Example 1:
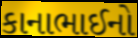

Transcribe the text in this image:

કાનાભાઈનો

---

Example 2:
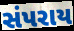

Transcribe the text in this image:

સંપરાય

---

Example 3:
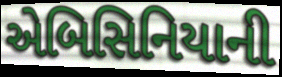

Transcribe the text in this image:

એબિસિનિયાની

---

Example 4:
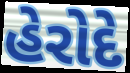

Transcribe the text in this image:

હેરોદે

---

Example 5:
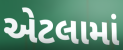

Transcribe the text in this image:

એટલામાં